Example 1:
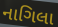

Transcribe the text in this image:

નાગિલા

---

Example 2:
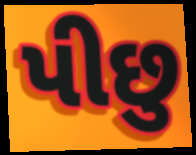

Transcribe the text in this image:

પીછુ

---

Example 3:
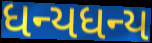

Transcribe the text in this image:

ધન્યધન્ય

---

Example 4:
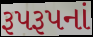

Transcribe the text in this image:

રૂપરૂપનાં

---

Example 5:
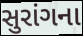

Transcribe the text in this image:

સુરાંગના